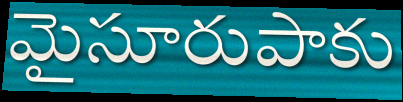
మైసూరుపాకు